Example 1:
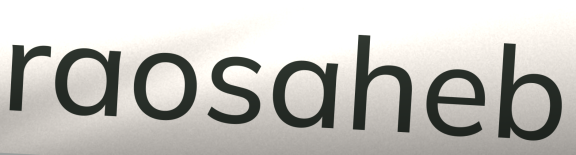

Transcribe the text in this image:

raosaheb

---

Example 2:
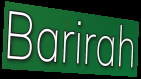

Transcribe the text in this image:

Barirah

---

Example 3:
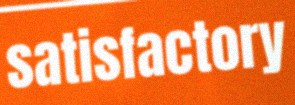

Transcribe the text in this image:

satisfactory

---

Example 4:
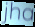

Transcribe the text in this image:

jha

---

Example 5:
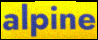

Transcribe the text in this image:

alpine